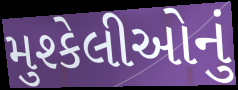
મુશ્કેલીઓનું